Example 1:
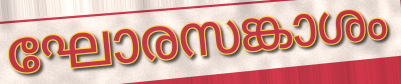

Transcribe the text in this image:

ഘോരസങ്കാശം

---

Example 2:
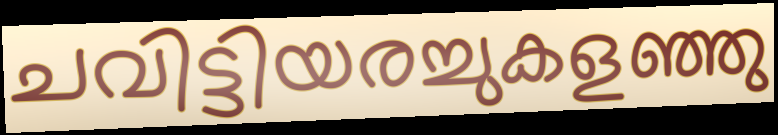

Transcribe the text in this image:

ചവിട്ടിയരച്ചുകളഞ്ഞു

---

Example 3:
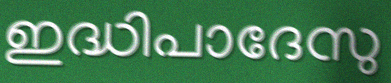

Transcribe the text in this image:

ഇദ്ധിപാദേസു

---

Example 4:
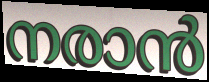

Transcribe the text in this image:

നരാൻ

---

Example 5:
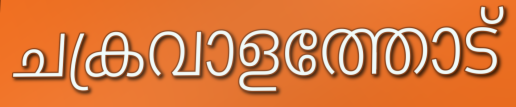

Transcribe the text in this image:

ചക്രവാളത്തോട്